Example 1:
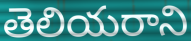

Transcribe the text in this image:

తెలియరాని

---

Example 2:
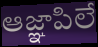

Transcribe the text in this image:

ఆజ్ఞాపిలే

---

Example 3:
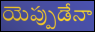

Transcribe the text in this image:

యెప్పుడేనా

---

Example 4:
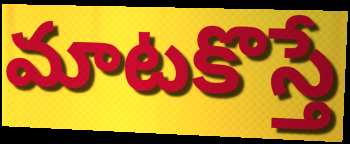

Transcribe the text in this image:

మాటకొస్తే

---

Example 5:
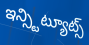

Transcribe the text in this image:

ఇన్స్టిట్యూట్స్